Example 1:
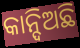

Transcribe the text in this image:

କାନ୍ଦିଅଛି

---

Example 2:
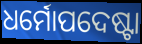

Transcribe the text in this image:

ଧର୍ମୋପଦେଷ୍ଟା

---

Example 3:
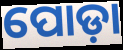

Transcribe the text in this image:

ପୋଡ଼ା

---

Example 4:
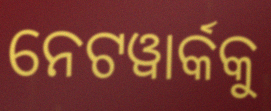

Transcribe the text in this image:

ନେଟୱାର୍କକୁ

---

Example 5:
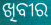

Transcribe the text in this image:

ଖିବୀର